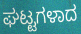
ಘಟ್ಟಗಳಾದ